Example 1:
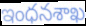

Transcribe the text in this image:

ఇంధనశాఖ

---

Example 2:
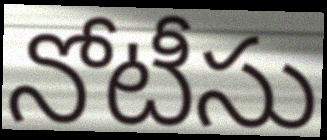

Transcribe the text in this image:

నోటీసు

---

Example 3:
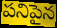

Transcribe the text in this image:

పనిపైన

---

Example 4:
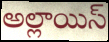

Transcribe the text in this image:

అల్లాయిస్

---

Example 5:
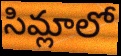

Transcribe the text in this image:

సిమ్లాలో